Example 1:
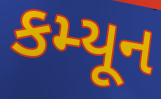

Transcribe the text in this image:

કમ્યૂન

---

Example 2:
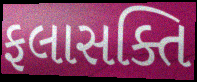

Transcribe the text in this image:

ફલાસક્તિ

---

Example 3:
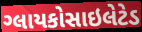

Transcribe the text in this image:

ગ્લાયકોસાઇલેટેડ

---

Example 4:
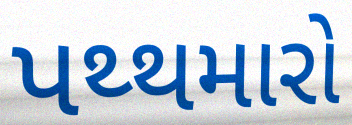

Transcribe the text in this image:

પથ્થમારો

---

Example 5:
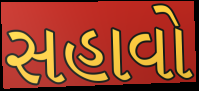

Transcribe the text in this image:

સહાવો